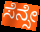
ಸೆನ್ಸೇ